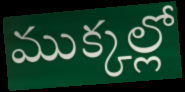
ముక్కల్లో